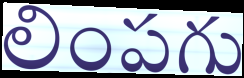
లింపగు